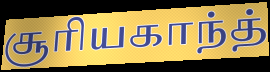
சூரியகாந்த்